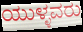
ಯುಳ್ಳವರು